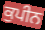
ਕੁਪੀਨ